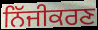
ਨਿੱਜੀਕਰਣ